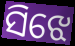
ସିଝେ